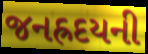
જનહ્રદયની